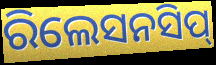
ରିଲେସନସିପ୍